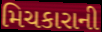
મિચકારાની